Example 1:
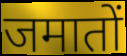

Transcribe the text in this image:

जमातों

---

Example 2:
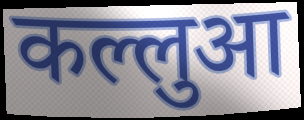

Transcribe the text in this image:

कल्लुआ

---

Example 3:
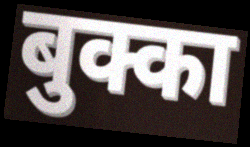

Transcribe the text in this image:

बुक्का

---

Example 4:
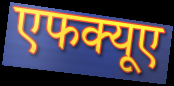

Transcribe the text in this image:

एफक्यूए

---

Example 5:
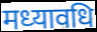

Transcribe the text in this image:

मध्‍यावधि